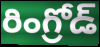
రింగ్రోడ్